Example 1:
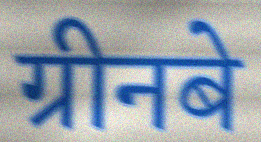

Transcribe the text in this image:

ग्रीनबे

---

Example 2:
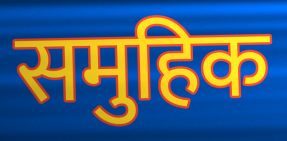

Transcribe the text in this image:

समुहिक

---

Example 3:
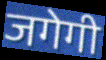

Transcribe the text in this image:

जगेगी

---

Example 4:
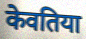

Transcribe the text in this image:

केवतिया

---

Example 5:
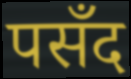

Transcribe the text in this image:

पसँद